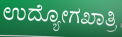
ಉದ್ಯೋಗಖಾತ್ರಿ